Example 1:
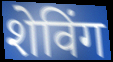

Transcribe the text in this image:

शेविंग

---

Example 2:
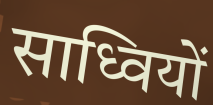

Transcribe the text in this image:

साध्वियों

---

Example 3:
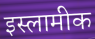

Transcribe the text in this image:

इस्लामीक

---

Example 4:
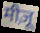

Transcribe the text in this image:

मीज़ू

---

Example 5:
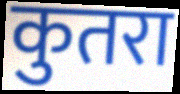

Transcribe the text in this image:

कुतरा